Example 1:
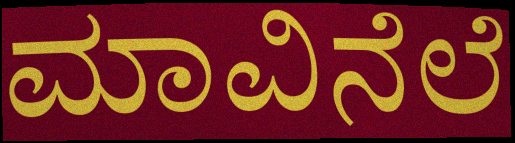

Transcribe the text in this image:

ಮಾವಿನೆಲೆ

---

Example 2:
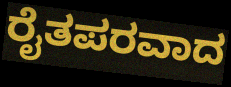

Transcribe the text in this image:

ರೈತಪರವಾದ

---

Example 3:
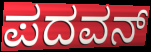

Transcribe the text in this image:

ಪದವನ್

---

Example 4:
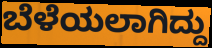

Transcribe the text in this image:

ಬೆಳೆಯಲಾಗಿದ್ದು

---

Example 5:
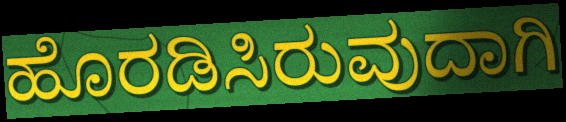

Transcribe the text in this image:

ಹೊರಡಿಸಿರುವುದಾಗಿ